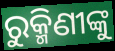
ରୁକ୍ମିଣୀଙ୍କୁ